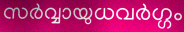
സർവ്വായുധവർഗ്ഗം